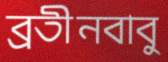
ব্রতীনবাবু